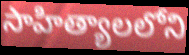
సాహిత్యాలలోని